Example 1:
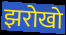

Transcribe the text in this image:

झरोखो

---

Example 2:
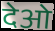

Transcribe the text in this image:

देओ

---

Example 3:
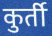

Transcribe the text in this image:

कुर्ती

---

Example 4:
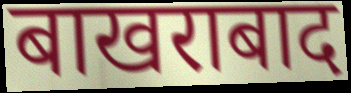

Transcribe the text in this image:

बाखराबाद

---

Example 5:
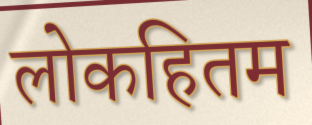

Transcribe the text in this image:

लोकहितम